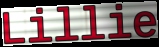
Lillie